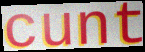
cunt